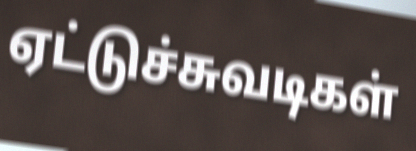
ஏட்டுச்சுவடிகள்